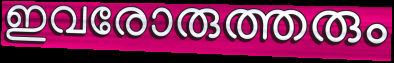
ഇവരോരുത്തരും